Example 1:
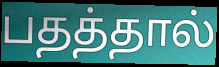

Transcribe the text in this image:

பதத்தால்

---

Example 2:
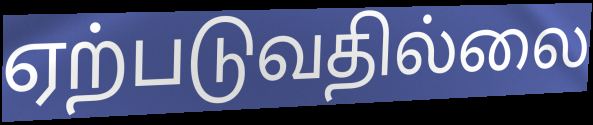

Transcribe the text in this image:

ஏற்படுவதில்லை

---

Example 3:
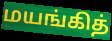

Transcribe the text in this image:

மயங்கித்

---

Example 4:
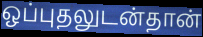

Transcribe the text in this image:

ஒப்புதலுடன்தான்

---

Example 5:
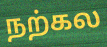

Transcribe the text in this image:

நற்கல